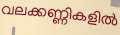
വലക്കണ്ണികളിൽ